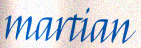
martian